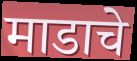
माडाचे